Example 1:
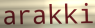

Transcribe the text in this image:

arakki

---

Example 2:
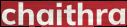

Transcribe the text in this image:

chaithra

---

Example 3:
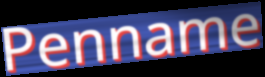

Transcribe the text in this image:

Penname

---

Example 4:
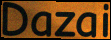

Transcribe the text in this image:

Dazai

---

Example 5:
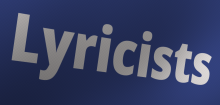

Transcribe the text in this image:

Lyricists